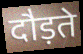
दौड़ते